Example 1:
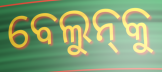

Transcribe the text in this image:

ବେଲୁନ୍‌କୁ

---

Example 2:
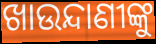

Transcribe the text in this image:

ଖାଉନ୍ଦାଣୀଙ୍କୁ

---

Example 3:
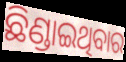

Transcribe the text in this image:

ଛିଣ୍ଡାଇଥିବାର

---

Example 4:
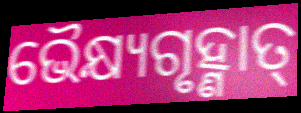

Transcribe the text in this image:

ଭୈକ୍ଷ୍ୟଗୃହ୍ଣାତ୍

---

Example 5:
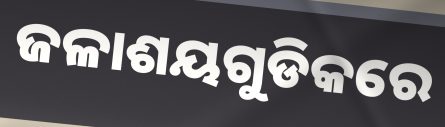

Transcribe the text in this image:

ଜଳାଶୟଗୁଡିକରେ